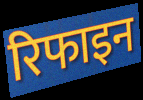
रिफाइन